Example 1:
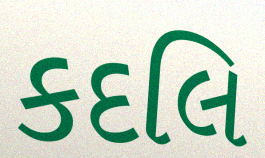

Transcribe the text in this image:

કદલિ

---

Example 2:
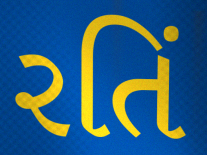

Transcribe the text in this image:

રતિં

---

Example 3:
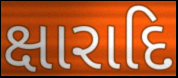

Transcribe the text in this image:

ક્ષારાદિ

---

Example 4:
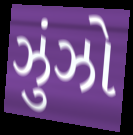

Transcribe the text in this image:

ઝુંઝો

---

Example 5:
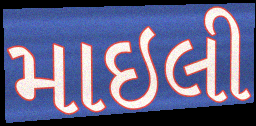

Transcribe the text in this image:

માઇલી